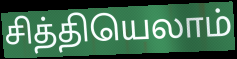
சித்தியெலாம்